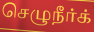
செழுநீர்க்